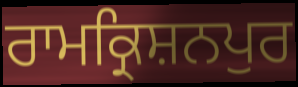
ਰਾਮਕ੍ਰਿਸ਼ਨਪੁਰ